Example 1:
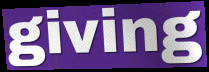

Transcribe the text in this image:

giving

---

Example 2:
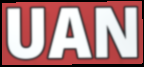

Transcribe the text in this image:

UAN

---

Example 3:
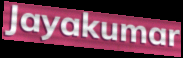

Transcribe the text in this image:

Jayakumar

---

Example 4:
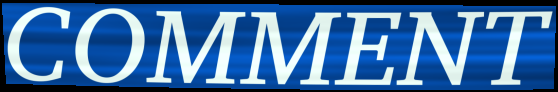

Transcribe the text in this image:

COMMENT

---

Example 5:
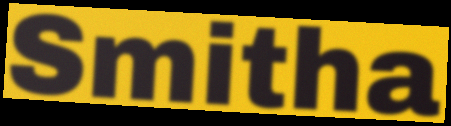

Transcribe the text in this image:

Smitha